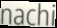
nachi